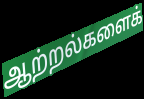
ஆற்றல்களைக்